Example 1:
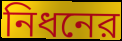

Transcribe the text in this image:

নিধনের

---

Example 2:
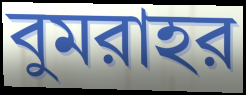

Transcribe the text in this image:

বুমরাহর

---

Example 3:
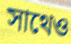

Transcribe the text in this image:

সাথেও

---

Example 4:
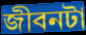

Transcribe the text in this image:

জীবনটা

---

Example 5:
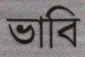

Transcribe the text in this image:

ভাবি